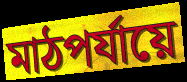
মাঠপর্যায়ে